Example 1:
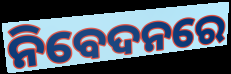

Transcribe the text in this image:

ନିବେଦନରେ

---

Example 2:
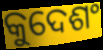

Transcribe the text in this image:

କୁଦେଶଂ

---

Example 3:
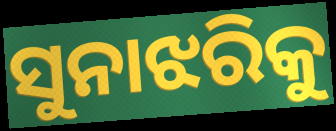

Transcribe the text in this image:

ସୁନାଝରିକୁ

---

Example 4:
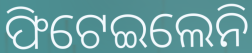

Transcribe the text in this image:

ଫିଟେଇଲେନି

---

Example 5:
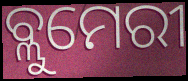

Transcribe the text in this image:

ବ୍ଲୁମେରୀ